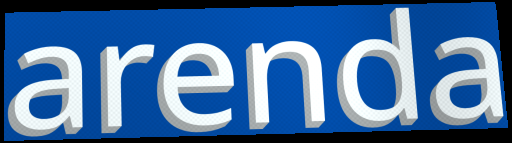
arenda